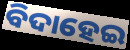
ବିଦାହେଇ